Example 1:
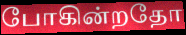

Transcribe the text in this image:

போகின்றதோ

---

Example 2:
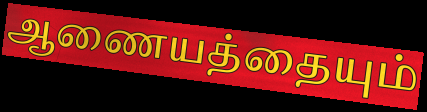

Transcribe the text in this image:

ஆணையத்தையும்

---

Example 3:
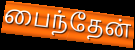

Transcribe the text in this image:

பைந்தேன்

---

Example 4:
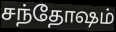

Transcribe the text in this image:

சந்தோஷம்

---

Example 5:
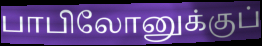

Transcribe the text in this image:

பாபிலோனுக்குப்